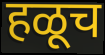
हळूच